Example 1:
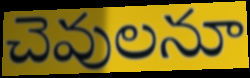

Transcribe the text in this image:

చెవులనూ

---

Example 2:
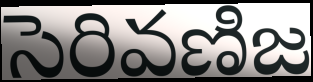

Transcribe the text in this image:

సెరివణిజ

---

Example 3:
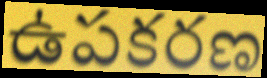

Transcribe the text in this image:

ఉపకరణ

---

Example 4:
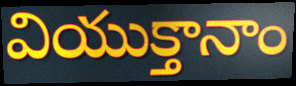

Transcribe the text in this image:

వియుక్తానాం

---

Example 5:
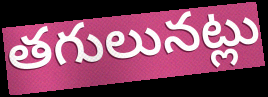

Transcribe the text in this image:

తగులునట్లు